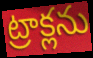
ట్రాక్లను